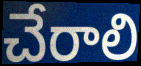
చేరాలి